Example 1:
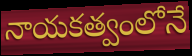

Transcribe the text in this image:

నాయకత్వంలోనే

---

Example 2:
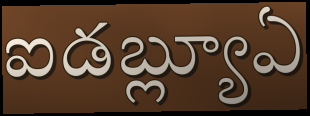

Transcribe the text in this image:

ఐడబ్ల్యూఏ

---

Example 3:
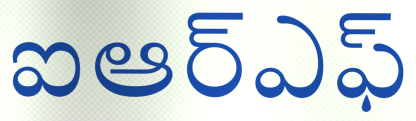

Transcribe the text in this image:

ఐఆర్ఎఫ్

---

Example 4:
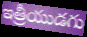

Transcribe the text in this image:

ఇత్రీయుడగు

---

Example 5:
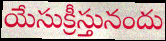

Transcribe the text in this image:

యేసుక్రీస్తునందు